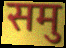
समु